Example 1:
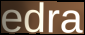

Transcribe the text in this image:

edra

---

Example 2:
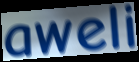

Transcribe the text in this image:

aweli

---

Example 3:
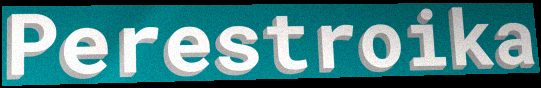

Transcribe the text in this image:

Perestroika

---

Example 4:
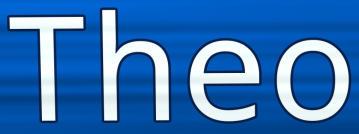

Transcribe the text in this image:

Theo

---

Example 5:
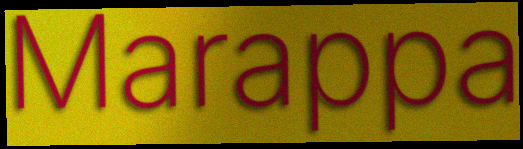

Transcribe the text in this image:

Marappa